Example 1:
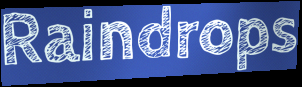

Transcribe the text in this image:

Raindrops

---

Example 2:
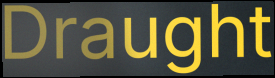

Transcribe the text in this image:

Draught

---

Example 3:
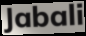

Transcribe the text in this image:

Jabali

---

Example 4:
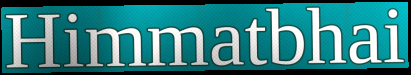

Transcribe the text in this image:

Himmatbhai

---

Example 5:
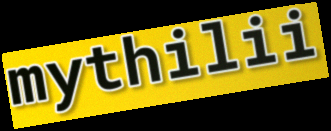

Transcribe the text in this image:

mythilii